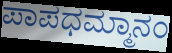
ಪಾಪಧಮ್ಮಾನಂ